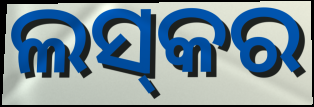
ଲସ୍‌କର